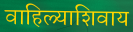
वाहिल्याशिवाय